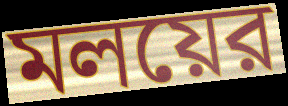
মলয়ের